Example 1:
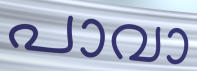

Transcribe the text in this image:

പാവാ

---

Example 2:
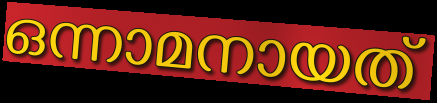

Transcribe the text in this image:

ഒന്നാമനായത്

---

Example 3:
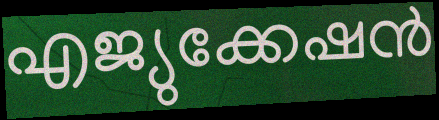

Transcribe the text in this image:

എജ്യുക്കേഷൻ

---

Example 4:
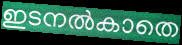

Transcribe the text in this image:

ഇടനൽകാതെ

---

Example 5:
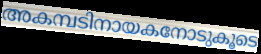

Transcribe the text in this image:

അകമ്പടിനായകനോടുകൂടെ